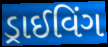
ડ્રાઈવિંગ